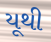
યૂથી